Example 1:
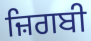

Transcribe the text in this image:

ਜ਼ਿਗਬੀ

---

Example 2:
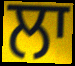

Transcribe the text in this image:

ਲਾ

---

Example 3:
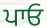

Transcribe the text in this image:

ਪਾਓ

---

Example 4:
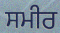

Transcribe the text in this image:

ਸਮੀਰ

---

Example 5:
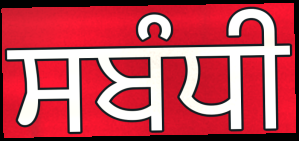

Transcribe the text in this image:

ਸਬੰਧੀ